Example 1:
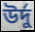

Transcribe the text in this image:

উৰ্দু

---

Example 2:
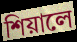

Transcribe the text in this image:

শিয়ালে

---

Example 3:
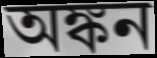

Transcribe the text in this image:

অঙ্কন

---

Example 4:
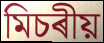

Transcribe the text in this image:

মিচৰীয়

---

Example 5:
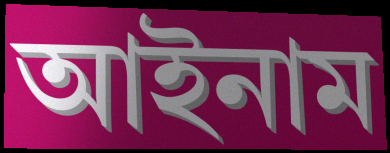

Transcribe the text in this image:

আইনাম